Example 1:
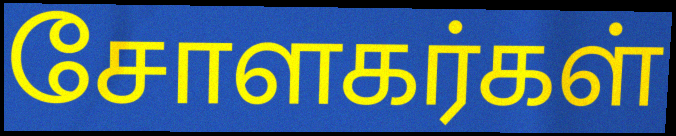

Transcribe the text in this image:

சோளகர்கள்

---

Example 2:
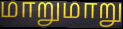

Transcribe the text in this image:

மாறுமாறு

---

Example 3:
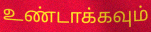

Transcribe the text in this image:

உண்டாக்கவும்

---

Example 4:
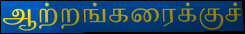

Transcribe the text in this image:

ஆற்றங்கரைக்குச்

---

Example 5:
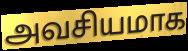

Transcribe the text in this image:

அவசியமாக